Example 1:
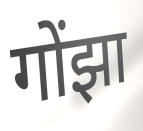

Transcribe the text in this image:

गोंझा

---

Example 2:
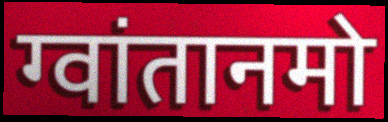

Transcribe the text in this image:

ग्वांतानमो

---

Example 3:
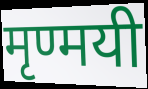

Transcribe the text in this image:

मृण्मयी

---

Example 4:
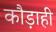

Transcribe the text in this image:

कौड़ाही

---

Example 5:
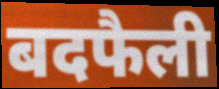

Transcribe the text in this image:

बदफैली